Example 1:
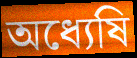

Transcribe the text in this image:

অধ্যেষি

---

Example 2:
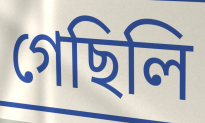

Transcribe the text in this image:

গেছিলি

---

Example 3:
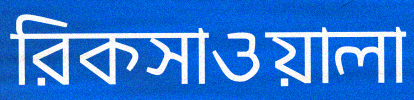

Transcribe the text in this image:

রিকসাওয়ালা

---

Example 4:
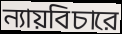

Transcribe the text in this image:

ন্যায়বিচারে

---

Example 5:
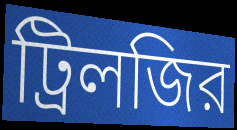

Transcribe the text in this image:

ট্রিলজির